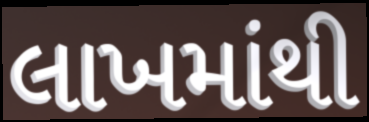
લાખમાંથી